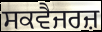
ਸਕਵੈਜਰਜ਼